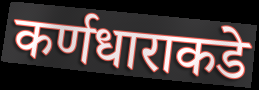
कर्णधाराकडे